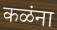
कळंना